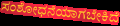
ಸಂಶೋಧನೆಯಾಗಬೇಕಿದೆ